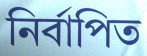
নির্বাপিত